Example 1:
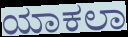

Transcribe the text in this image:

ಯಾಕಲಾ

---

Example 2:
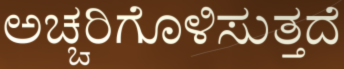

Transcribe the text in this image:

ಅಚ್ಚರಿಗೊಳಿಸುತ್ತದೆ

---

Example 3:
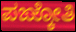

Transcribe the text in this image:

ಪಙ್ಕೋತಿ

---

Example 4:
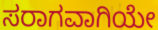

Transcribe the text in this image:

ಸರಾಗವಾಗಿಯೇ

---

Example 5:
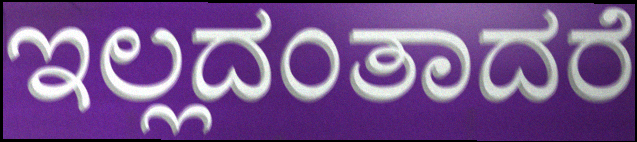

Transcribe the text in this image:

ಇಲ್ಲದಂತಾದರೆ